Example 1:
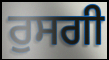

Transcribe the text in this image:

ਰੁਸਗੀ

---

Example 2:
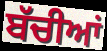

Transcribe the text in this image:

ਬੱਚੀਆਂ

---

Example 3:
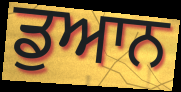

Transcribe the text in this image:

ਡੁਆਨ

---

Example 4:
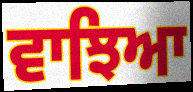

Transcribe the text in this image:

ਵਾਝਿਆ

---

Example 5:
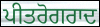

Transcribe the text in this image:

ਪੀਤਰੋਗਰਾਦ